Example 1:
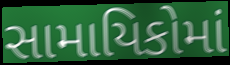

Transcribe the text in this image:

સામાયિકોમાં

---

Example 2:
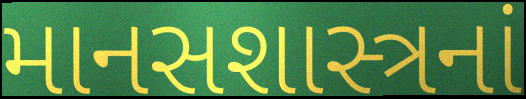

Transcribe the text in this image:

માનસશાસ્ત્રનાં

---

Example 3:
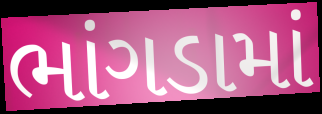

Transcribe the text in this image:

ભાંગડામાં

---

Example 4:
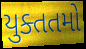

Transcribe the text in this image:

યુક્તતમો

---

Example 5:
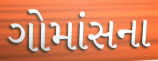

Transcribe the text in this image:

ગોમાંસના